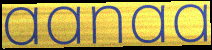
aanaa